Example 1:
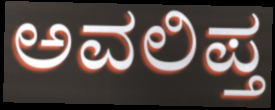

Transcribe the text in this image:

ಅವಲಿಪ್ತ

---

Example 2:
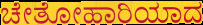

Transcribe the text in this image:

ಚೇತೋಹಾರಿಯಾದ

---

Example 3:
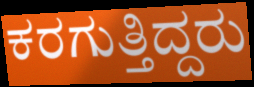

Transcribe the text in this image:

ಕರಗುತ್ತಿದ್ದರು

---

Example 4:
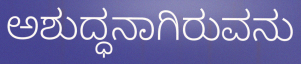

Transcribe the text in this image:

ಅಶುದ್ಧನಾಗಿರುವನು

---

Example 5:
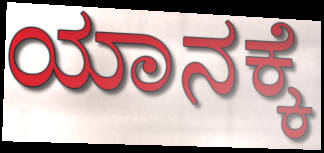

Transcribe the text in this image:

ಯಾನಕ್ಕೆ